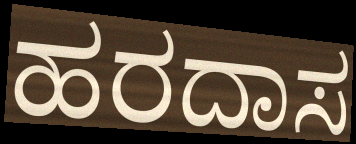
ಹರದಾಸ